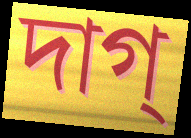
দাগ্